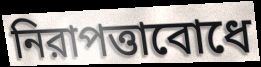
নিরাপত্তাবোধে